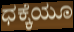
ಧಕ್ಕೆಯೂ